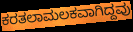
ಕರತಲಾಮಲಕವಾಗಿದ್ದವು